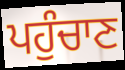
ਪਹੁੰਚਾਣ